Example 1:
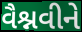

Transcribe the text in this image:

વૈશ્નવીને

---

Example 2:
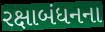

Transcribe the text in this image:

રક્ષાબંધનના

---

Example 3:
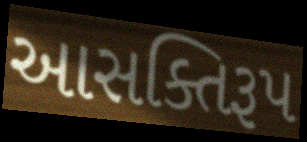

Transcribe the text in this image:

આસક્તિરૂપ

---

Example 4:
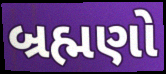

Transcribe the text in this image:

બ્રહ્મણો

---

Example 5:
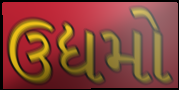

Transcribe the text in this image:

ઉદ્યમો